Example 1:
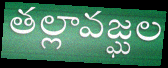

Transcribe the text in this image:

తల్లావజ్ఘల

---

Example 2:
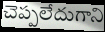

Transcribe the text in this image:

చెప్పలేదుగాని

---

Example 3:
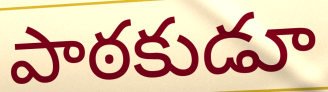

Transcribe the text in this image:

పాఠకుడూ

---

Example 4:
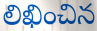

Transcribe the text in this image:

లిఖించిన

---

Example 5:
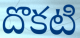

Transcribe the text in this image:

దొకటి